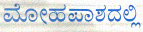
ಮೋಹಪಾಶದಲ್ಲಿ